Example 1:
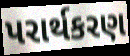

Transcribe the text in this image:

પરાર્થકરણ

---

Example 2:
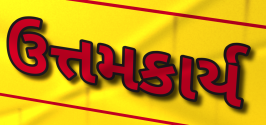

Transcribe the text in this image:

ઉત્તમકાર્ય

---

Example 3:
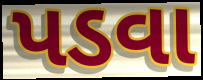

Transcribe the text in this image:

પડવા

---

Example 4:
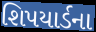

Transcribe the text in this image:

શિપયાર્ડના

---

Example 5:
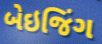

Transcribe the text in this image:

બેઇજિંગ